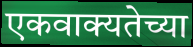
एकवाक्यतेच्या